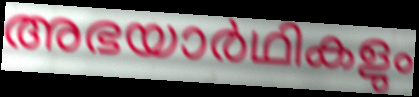
അഭയാർഥികളും